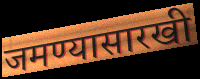
जमण्यासारखी